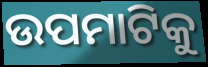
ଉପମାଟିକୁ